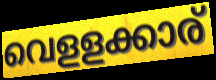
വെളളക്കാര്